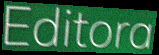
Editora